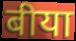
बीया